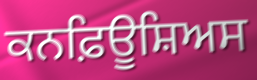
ਕਨਫ਼ਿਊਸ਼ਿਅਸ